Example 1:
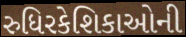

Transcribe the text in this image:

રુધિરકેશિકાઓની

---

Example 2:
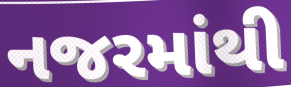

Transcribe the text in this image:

નજરમાંથી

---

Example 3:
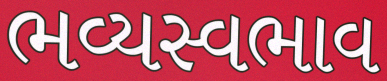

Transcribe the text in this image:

ભવ્યસ્વભાવ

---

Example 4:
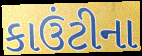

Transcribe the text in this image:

કાઉંટીના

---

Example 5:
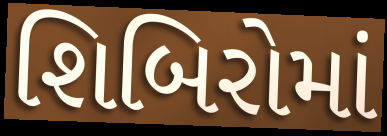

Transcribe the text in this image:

શિબિરોમાં